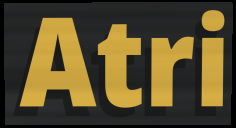
Atri